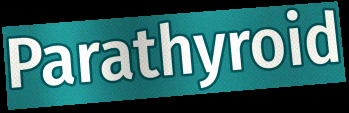
Parathyroid